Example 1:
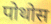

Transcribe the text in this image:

पोथोस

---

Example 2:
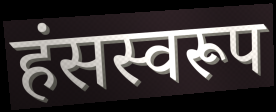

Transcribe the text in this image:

हंसस्वरूप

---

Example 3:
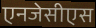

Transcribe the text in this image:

एनजेसीएस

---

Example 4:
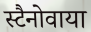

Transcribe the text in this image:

स्टैनोवाया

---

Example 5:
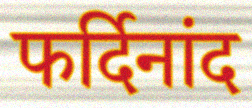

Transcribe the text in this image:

फर्दिनांद